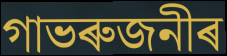
গাভৰুজনীৰ